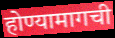
होण्यामागची